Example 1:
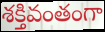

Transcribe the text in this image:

శక్తివంతంగా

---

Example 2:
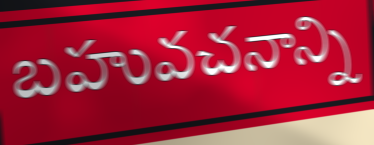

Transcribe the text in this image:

బహువచనాన్ని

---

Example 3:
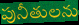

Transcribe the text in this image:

పునీతులను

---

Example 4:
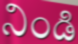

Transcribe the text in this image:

నిండి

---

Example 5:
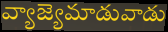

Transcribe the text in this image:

వ్యాజ్యెమాడువాడు